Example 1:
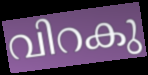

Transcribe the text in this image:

വിറകു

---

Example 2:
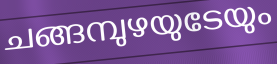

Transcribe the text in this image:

ചങ്ങമ്പുഴയുടേയും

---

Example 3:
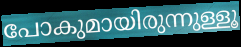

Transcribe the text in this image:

പോകുമായിരുന്നുള്ളൂ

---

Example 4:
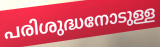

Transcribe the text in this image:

പരിശുദ്ധനോടുള്ള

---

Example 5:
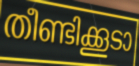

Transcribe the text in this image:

തീണ്ടിക്കൂടാ